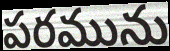
పరమును